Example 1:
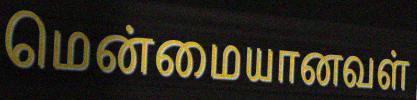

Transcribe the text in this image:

மென்மையானவள்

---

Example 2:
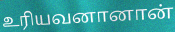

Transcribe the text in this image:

உரியவனானான்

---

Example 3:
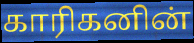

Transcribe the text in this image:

காரிகனின்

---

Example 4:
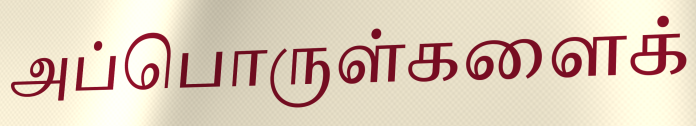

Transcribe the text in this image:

அப்பொருள்களைக்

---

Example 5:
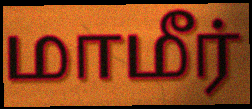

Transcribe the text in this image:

மாமீர்